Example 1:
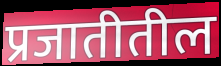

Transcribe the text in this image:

प्रजातीतील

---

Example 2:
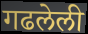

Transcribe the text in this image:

गढलेली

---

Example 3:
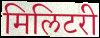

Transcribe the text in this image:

मिलिटरी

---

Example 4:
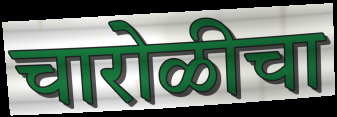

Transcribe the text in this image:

चारोळीचा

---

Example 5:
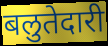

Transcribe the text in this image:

बलुतेदारी